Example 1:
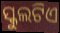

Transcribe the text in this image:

ସ୍କୁଲଟିଏ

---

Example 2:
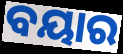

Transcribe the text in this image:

ବୟାର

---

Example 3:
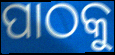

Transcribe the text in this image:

ପାଠକୁ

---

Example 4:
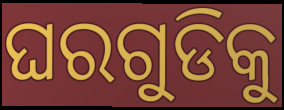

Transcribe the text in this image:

ଘରଗୁଡିକୁ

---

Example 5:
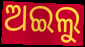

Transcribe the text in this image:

ଅଇଲୁ